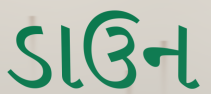
ડાઉન